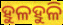
ହୁଳହୁଳି